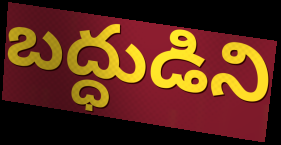
బద్ధుడిని